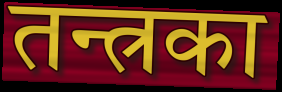
तन्त्रका